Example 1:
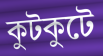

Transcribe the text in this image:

কুটকুটে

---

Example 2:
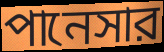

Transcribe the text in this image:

পানেসার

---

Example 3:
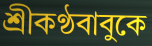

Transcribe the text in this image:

শ্রীকণ্ঠবাবুকে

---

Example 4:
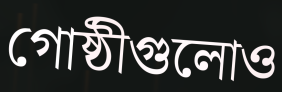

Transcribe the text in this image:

গোষ্ঠীগুলোও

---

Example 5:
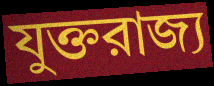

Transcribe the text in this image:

যুক্তরাজ্য